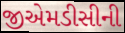
જીએમડીસીની